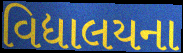
વિદ્યાલયના